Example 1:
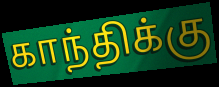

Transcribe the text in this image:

காந்திக்கு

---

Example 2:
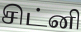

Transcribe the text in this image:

சிட்னி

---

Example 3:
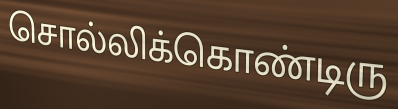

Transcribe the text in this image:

சொல்லிக்கொண்டிரு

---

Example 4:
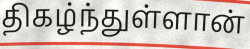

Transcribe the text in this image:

திகழ்ந்துள்ளான்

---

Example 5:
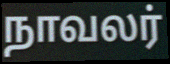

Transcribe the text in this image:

நாவலர்